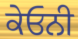
ਕੇਓਨੀ